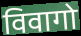
विवागो